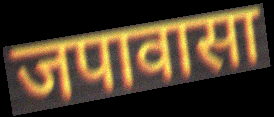
जपावासा